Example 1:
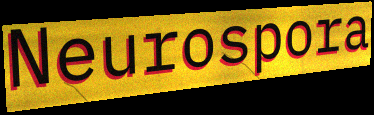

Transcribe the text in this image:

Neurospora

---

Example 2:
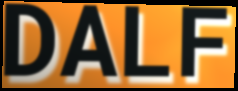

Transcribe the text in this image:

DALF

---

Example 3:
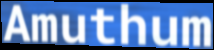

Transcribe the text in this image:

Amuthum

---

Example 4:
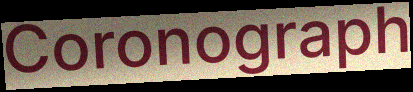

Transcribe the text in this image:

Coronograph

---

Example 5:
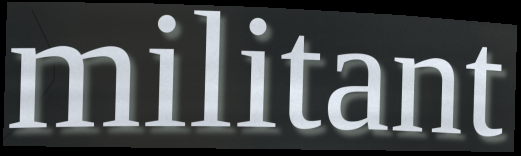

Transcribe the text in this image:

militant